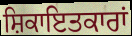
ਸ਼ਿਕਾਇਤਕਾਰਾਂ